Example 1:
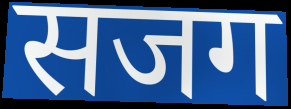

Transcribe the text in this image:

सजग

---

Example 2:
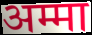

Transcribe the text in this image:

अम्मा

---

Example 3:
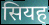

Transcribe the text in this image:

सियह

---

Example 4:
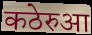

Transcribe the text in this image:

कठेरुआ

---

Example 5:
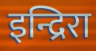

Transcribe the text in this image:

इन्द्रिरा